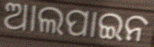
ଆଲପାଇନ